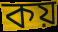
কয়